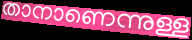
താനാണെന്നുള്ള